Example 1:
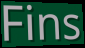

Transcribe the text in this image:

Fins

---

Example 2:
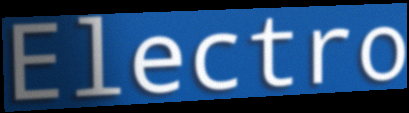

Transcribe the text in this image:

Electro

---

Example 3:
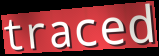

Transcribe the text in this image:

traced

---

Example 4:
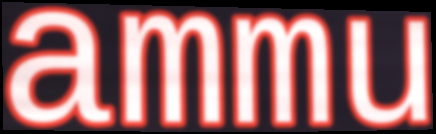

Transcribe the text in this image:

ammu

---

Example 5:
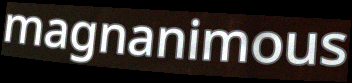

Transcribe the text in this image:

magnanimous